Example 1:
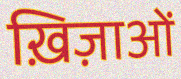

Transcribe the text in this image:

ख़िज़ाओं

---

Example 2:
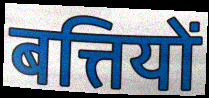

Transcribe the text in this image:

बत्तियों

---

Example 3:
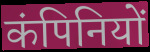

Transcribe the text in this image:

कंपिनियों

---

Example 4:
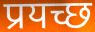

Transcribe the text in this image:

प्रयच्छ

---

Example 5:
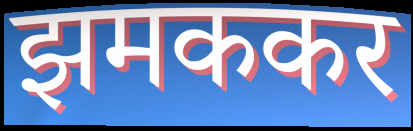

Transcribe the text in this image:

झमककर